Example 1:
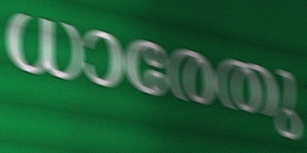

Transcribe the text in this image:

ധാരേതു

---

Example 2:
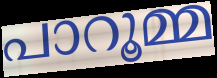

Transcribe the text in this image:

പാറൂമ്മ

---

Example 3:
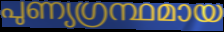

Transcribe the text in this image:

പുണ്യഗ്രന്ഥമായ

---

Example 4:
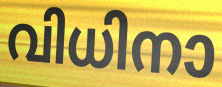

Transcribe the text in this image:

വിധിനാ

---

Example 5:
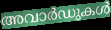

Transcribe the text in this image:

അവാർഡുകൾ